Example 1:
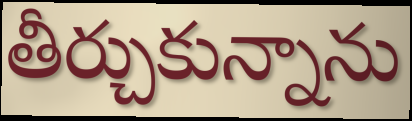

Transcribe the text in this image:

తీర్చుకున్నాను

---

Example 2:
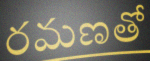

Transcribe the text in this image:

రమణతో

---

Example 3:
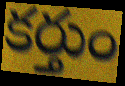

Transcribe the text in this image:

కర్తుం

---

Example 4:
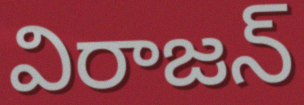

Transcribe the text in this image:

విరాజన్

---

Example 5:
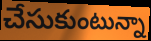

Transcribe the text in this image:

చేసుకుంటున్నా